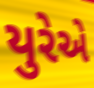
યુરેએ